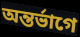
অন্তর্ভাগে